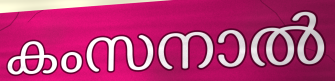
കംസനാൽ